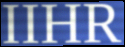
IIHR